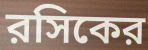
রসিকের